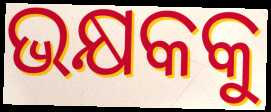
ଭକ୍ଷକକୁ